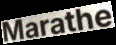
Marathe